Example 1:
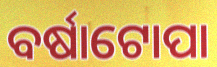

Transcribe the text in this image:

ବର୍ଷାଟୋପା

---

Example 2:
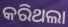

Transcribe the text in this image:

କରିଥଲା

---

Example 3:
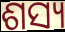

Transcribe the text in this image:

ଶସ୍ଯ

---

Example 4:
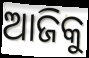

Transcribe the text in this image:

ଆଜିକୁ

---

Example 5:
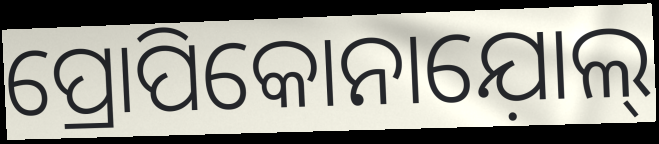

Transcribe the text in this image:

ପ୍ରୋପିକୋନାଯ଼ୋଲ୍